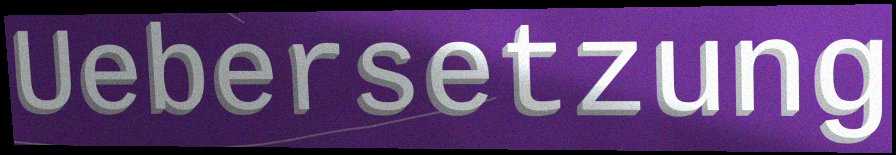
Uebersetzung